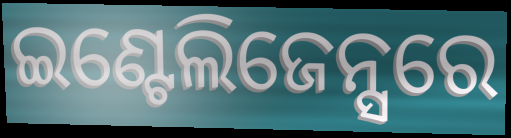
ଇଣ୍ଟେଲିଜେନ୍ସରେ